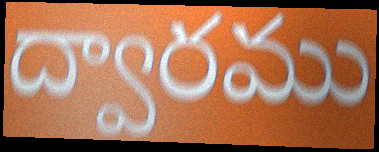
ద్వారము